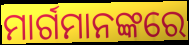
ମାର୍ଗମାନଙ୍କରେ